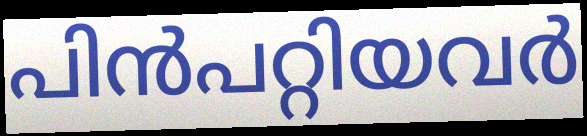
പിൻപറ്റിയവർ